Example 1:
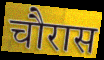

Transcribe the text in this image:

चौरास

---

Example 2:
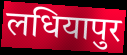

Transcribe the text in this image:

लधियापुर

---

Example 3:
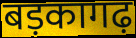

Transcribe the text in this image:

बड़कागढ़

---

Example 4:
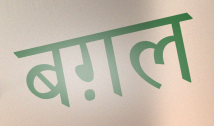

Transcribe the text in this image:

बग़ल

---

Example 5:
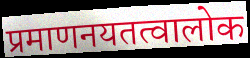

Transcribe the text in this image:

प्रमाणनयतत्वालोक